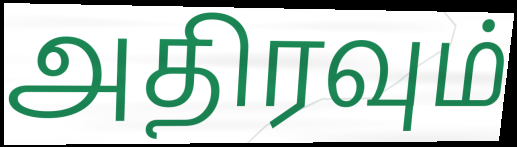
அதிரவும்